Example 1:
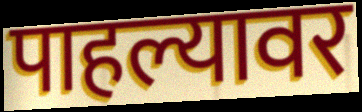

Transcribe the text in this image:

पाहल्यावर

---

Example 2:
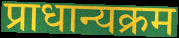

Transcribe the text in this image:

प्राधान्यक्रम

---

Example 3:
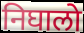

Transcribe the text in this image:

निघालो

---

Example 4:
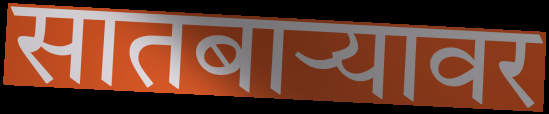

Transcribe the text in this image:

सातबाऱ्यावर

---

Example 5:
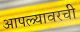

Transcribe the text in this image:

आपल्यावरची